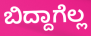
ಬಿದ್ದಾಗೆಲ್ಲ